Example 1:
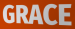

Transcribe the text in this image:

GRACE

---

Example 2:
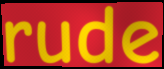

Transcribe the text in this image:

rude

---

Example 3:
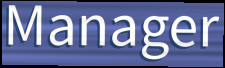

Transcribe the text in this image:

Manager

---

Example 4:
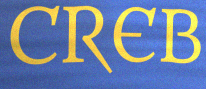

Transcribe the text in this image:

CREB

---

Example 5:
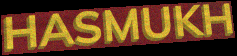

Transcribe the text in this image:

HASMUKH